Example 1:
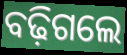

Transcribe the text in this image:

ବଢ଼ିଗଲେ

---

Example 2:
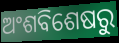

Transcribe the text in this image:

ଅଂଶବିଶେଷରୁ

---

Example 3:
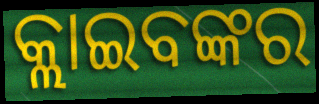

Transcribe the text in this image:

କ୍ଲାଇବଙ୍କର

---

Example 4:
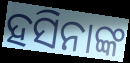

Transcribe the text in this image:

ହସିନାଙ୍କ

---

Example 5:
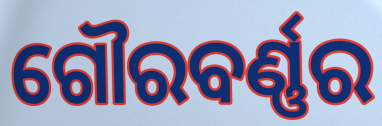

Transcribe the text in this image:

ଗୌରବର୍ଣ୍ଣର